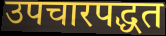
उपचारपद्धत